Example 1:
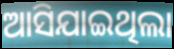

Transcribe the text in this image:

ଆସିଯାଇଥିଲା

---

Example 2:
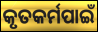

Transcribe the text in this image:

କୃତକର୍ମପାଇଁ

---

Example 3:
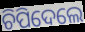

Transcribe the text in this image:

ଚିପିଦେଲେ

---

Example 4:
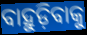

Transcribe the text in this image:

ବାହୁଡ଼ିବାକୁ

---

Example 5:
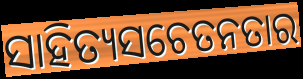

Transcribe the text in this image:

ସାହିତ୍ୟସଚେତନତାର